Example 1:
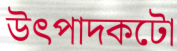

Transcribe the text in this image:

উৎপাদকটো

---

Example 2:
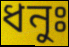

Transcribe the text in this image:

ধনুঃ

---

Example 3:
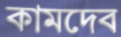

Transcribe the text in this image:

কামদেব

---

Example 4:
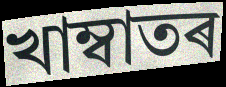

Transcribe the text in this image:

খাম্বাতৰ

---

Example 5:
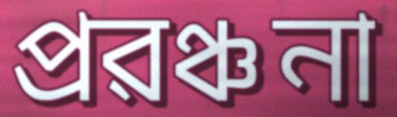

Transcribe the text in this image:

প্ৰৱঞ্চনা